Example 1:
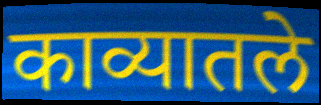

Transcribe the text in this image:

काव्यातले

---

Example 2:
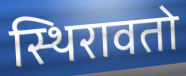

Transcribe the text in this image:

स्थिरावतो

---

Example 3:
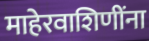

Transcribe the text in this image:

माहेरवाशिणींना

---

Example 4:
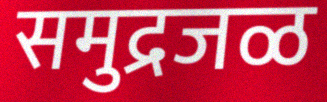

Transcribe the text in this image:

समुद्रजळ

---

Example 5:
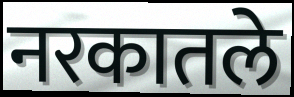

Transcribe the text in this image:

नरकातले